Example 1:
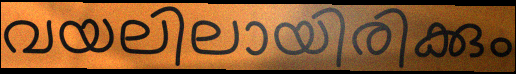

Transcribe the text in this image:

വയലിലായിരിക്കും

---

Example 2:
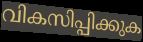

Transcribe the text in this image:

വികസിപ്പിക്കുക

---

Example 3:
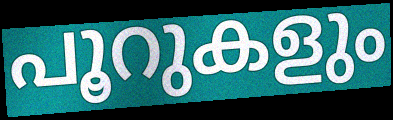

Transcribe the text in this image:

പൂറുകളും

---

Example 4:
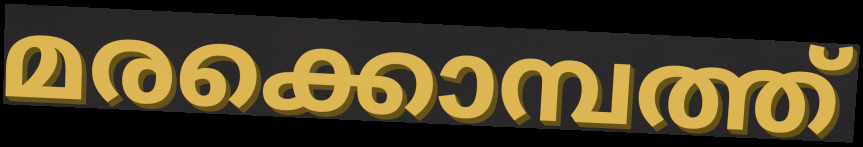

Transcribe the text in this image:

മരക്കൊമ്പത്ത്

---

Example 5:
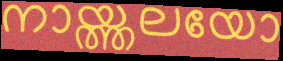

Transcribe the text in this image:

നായ്ത്തലയോ